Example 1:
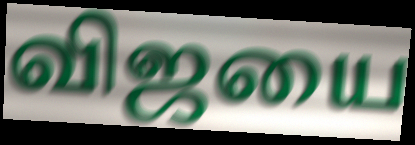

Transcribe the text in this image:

விஜயை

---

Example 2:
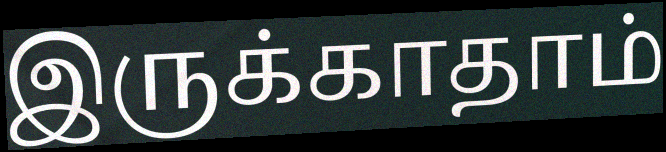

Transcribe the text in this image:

இருக்காதாம்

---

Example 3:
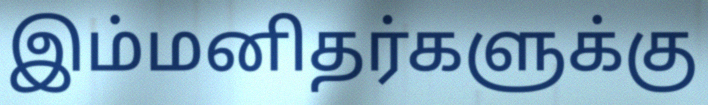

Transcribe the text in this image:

இம்மனிதர்களுக்கு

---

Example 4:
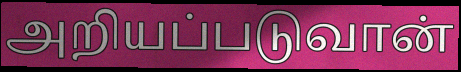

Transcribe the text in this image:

அறியப்படுவான்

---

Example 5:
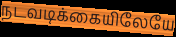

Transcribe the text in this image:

நடவடிக்கையிலேயே